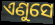
ଏଣୁସେ